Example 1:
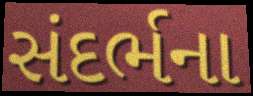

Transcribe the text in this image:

સંદર્ભના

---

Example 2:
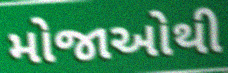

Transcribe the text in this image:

મોજાઓથી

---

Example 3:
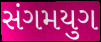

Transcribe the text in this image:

સંગમયુગ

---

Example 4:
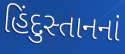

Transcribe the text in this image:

હિંદુસ્તાનનાં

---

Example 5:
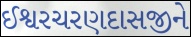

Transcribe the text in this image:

ઈશ્વરચરણદાસજીને